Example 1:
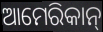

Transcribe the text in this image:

ଆମେରିକାନ୍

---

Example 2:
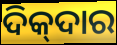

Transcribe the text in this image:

ଦିକ୍‍ଦାର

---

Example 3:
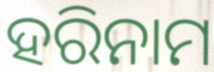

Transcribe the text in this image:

ହରିନାମ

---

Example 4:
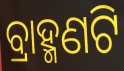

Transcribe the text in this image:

ବ୍ରାହ୍ମଣଟି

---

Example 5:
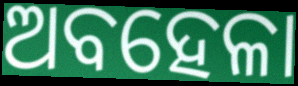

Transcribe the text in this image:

ଅବହେଳା